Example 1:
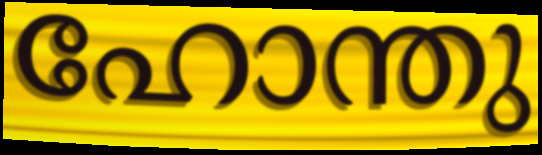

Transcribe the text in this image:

ഹോന്തു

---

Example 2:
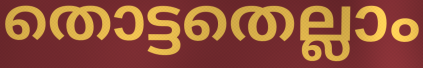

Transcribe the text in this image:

തൊട്ടതെല്ലാം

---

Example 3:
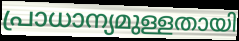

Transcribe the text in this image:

പ്രാധാന്യമുള്ളതായി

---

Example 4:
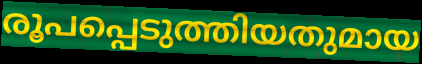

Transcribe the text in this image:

രൂപപ്പെടുത്തിയതുമായ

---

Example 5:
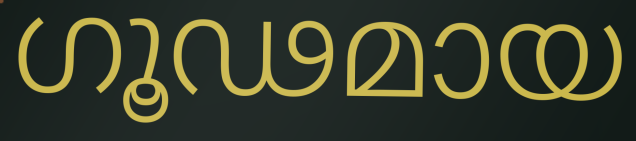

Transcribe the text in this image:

ഗൂഢമായ